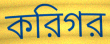
করিগর